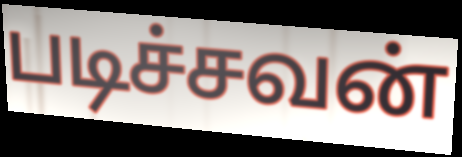
படிச்சவன்